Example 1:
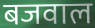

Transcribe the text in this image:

बजवाल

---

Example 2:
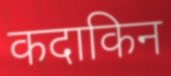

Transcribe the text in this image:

कदाकिन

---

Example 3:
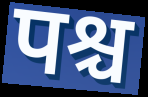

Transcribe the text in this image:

पश्च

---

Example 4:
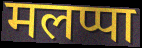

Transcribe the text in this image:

मलप्पा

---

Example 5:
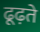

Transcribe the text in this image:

ढूढ़ते